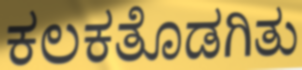
ಕಲಕತೊಡಗಿತು